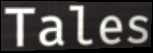
Tales